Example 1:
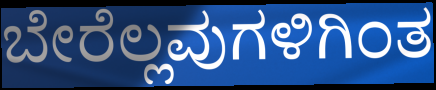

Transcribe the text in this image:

ಬೇರೆಲ್ಲವುಗಳಿಗಿಂತ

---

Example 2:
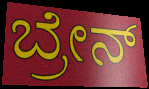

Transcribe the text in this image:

ಬ್ರೇನ್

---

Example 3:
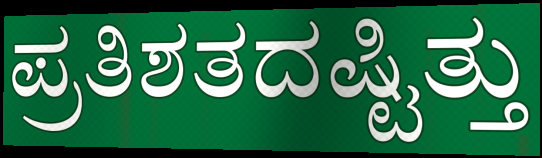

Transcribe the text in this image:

ಪ್ರತಿಶತದಷ್ಟಿತ್ತು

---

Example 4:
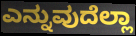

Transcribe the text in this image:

ಎನ್ನುವುದೆಲ್ಲಾ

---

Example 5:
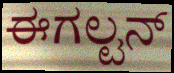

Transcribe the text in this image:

ಈಗಲ್ಟನ್